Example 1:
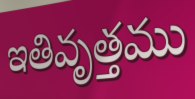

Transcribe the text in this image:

ఇతివృత్తము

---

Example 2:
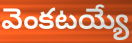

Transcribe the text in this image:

వెంకటయ్యే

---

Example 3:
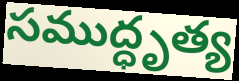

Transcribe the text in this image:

సముద్ధృత్య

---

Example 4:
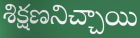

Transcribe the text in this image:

శిక్షణనిచ్చాయి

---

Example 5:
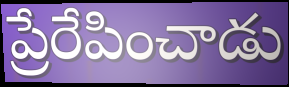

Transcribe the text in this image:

ప్రేరేపించాడు